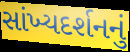
સાંખ્યદર્શનનું